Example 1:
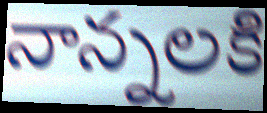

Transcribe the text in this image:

నాన్నలకి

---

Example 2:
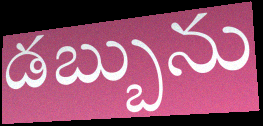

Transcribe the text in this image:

డబ్బును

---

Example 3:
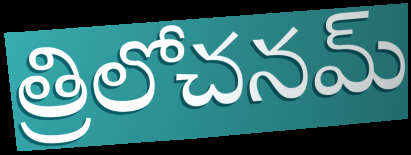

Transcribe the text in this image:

త్రిలోచనమ్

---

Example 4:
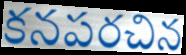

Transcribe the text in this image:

కనపరచిన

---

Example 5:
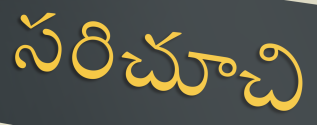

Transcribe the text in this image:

సరిచూచి